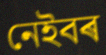
নেইবৰ